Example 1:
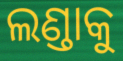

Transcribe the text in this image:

ଲଣ୍ଡାକୁ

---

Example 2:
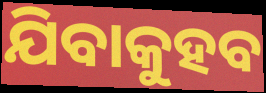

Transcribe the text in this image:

ଯିବାକୁହବ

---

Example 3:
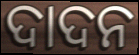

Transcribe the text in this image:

ଦାଦନ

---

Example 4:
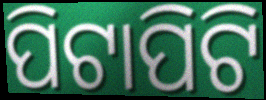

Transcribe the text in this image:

ପିଟାପିଟି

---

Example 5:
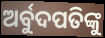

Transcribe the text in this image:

ଅର୍ବୁଦପତିଙ୍କୁ